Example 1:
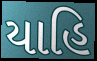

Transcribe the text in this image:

યાહિ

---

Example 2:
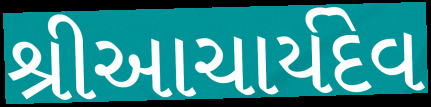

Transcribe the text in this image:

શ્રીઆચાર્યદેવ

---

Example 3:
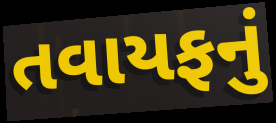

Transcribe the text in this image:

તવાયફનું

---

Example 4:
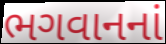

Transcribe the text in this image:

ભગવાનનાં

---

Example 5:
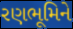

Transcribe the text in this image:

રણભૂમિને